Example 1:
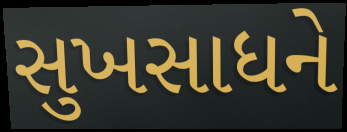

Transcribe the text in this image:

સુખસાધને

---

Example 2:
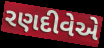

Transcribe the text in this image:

રણદીવેએ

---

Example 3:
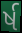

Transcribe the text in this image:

ર્ષ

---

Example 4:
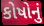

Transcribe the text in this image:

કોષોનું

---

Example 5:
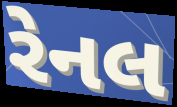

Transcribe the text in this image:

રેનલ